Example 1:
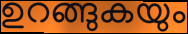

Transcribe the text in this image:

ഉറങ്ങുകയും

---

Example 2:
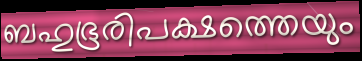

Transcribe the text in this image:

ബഹുഭൂരിപക്ഷത്തെയും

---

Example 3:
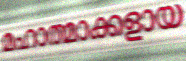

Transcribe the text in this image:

മഹാത്മാക്കളായ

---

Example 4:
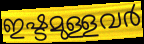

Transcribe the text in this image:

ഇഷ്ടമുള്ളവർ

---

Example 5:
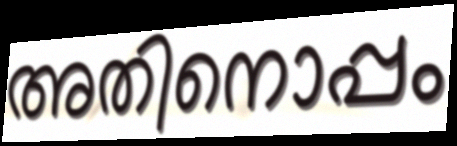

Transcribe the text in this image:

അതിനൊപ്പം